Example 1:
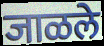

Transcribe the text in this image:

जाळले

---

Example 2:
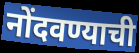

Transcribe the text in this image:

नोंदवण्याची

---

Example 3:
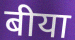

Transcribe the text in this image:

बीया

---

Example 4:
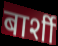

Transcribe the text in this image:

बार्शी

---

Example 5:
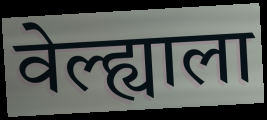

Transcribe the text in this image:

वेल्ह्याला